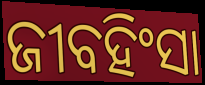
ଜୀବହିଂସା